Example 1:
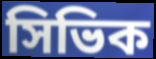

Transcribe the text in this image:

সিভিক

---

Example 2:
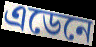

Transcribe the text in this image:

এডেনে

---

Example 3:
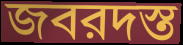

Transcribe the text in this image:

জবরদস্ত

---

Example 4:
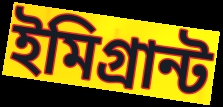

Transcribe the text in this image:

ইমিগ্রান্ট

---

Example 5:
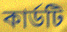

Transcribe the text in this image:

কার্ডটি